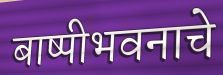
बाष्पीभवनाचे